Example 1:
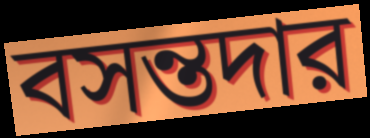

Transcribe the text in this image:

বসন্তদার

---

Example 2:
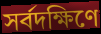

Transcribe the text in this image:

সর্বদক্ষিণে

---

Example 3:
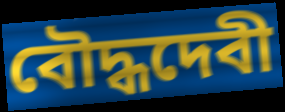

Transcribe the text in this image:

বৌদ্ধদেবী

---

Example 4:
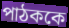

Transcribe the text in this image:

পাঠককে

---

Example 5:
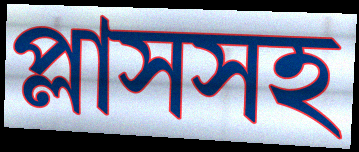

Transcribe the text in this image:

প্লাসসহ